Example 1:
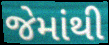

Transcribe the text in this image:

જેમાંથી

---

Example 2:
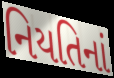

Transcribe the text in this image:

નિયતિનાં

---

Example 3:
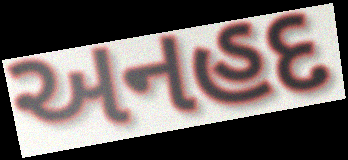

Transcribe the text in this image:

અનહદ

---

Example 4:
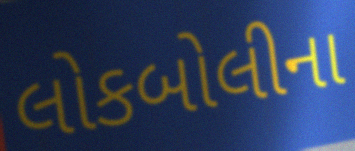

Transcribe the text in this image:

લોકબોલીના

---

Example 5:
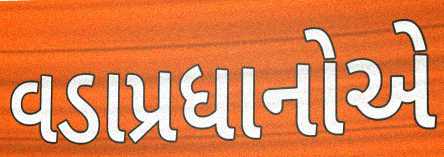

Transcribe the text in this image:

વડાપ્રધાનોએ